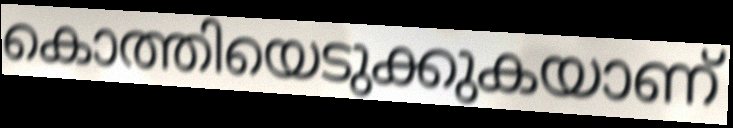
കൊത്തിയെടുക്കുകയാണ്